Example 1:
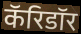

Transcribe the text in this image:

कॅरिडॉर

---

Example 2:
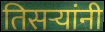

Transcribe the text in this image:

तिसऱ्यांनी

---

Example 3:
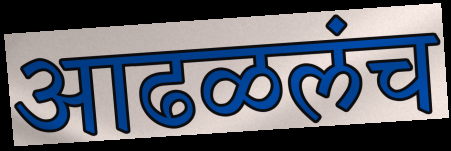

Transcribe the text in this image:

आढळलंच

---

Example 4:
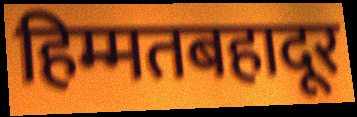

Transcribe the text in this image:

हिम्मतबहादूर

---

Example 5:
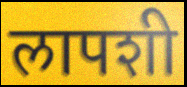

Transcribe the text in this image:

लापशी